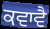
ਕਵਾਵੈ